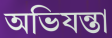
অভিযন্তা